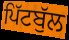
ਪਿੱਟਬੁੱਲ